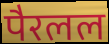
पैरलल